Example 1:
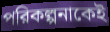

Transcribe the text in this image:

পরিকল্পনাকেই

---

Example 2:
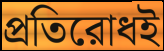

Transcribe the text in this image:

প্রতিরোধই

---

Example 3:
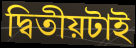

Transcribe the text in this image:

দ্বিতীয়টাই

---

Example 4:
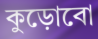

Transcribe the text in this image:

কুড়োবো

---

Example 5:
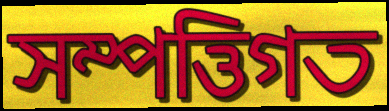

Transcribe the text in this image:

সম্পত্তিগত